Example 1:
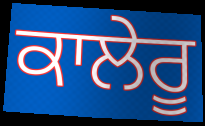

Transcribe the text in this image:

ਕਾਲੇਰੂ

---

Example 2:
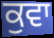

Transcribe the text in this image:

ਕੁਵਾ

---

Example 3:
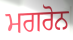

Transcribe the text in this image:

ਮਗਰੋਨ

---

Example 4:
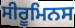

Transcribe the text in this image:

ਸੀਰੂਮਿਨਸ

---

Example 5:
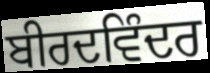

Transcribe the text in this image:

ਬੀਰਦਵਿੰਦਰ